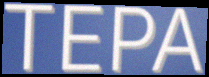
TEPA